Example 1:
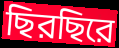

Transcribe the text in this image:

ছিরছিরে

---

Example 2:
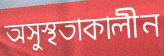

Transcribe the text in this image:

অসুস্থতাকালীন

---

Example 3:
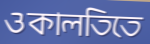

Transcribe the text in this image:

ওকালতিতে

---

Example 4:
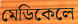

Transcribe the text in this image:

মেডিকেলে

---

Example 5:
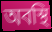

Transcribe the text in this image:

অবস্থি